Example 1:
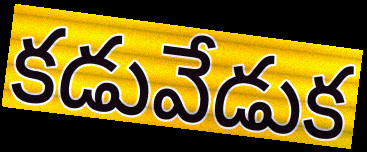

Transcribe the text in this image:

కడువేడుక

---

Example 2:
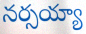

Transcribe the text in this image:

నర్సయ్యా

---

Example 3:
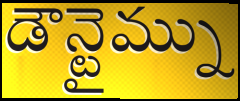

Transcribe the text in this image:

డౌన్టైమ్ను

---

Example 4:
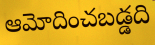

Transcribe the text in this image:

ఆమోదించబడ్డది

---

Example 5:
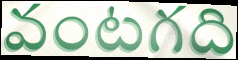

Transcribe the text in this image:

వంటగది